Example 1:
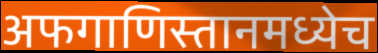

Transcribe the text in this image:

अफगाणिस्तानमध्येच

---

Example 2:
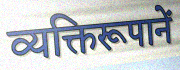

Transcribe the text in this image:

व्यक्तिरूपानें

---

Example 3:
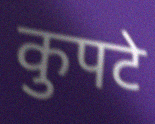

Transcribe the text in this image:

कुपटे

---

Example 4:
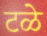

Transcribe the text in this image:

टळे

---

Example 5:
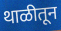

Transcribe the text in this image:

थाळीतून